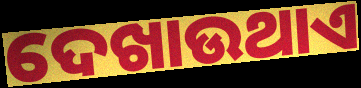
ଦେଖାଉଥାଏ